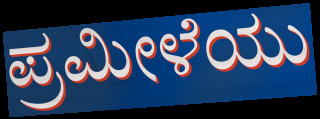
ಪ್ರಮೀಳೆಯು